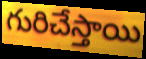
గురిచేస్తాయి